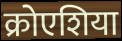
क्रोएशिया